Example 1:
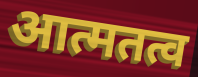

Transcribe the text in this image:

आत्मतत्व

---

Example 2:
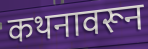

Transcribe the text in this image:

कथनावरून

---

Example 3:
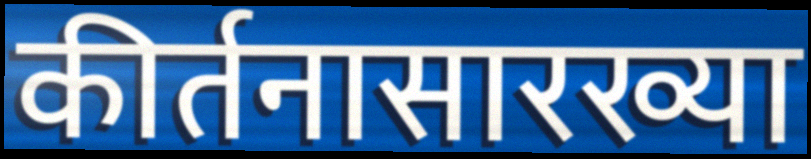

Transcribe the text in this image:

कीर्तनासारख्या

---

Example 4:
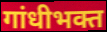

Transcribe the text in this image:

गांधीभक्त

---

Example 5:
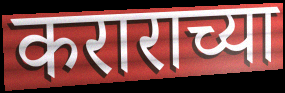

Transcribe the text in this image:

कराराच्या